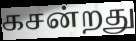
கசன்றது